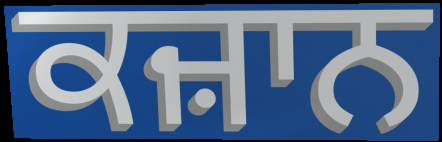
ਕਜ਼ਾਨ